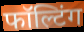
फॉल्टिंग